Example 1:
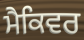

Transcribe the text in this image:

ਮੈਕਿਵਰ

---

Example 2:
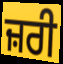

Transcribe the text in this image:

ਜ਼ਰੀ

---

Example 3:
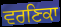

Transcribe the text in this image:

ਵਰਣਿਕਾ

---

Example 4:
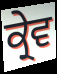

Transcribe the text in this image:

ਕ੍ਰੇਵ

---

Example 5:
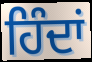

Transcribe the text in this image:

ਹਿੰਦਾਂ